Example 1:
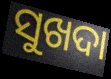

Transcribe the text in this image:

ସୁଖଦା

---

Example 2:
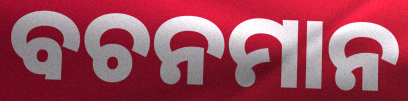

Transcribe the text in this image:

ବଚନମାନ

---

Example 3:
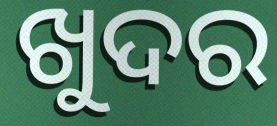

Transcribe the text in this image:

ଖୁଦର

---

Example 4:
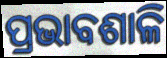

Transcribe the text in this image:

ପ୍ରଭାବଶାଳି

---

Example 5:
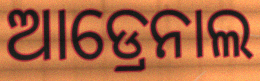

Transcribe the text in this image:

ଆଡ୍ରେନାଲ